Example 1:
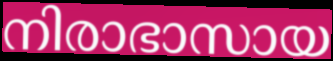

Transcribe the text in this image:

നിരാഭാസായ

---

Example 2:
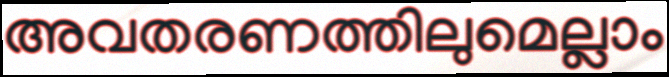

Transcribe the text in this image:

അവതരണത്തിലുമെല്ലാം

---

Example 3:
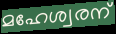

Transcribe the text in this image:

മഹേശ്വരന്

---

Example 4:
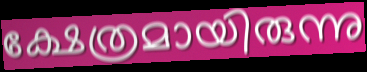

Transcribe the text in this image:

ക്ഷേത്രമായിരുന്നു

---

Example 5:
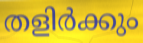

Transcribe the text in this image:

തളിർക്കും